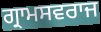
ਗ੍ਰਾਮਸਵਰਾਜ